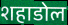
शहाडोल